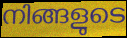
നിങ്ങളുടെ